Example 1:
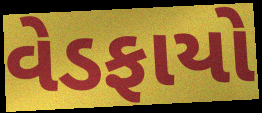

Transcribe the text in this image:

વેડફાયો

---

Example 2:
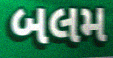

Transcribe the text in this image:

બલમ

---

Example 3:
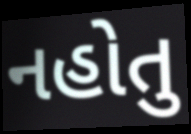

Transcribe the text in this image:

નહોતુ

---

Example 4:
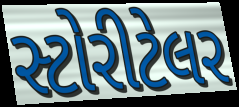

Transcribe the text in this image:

સ્ટોરીટેલર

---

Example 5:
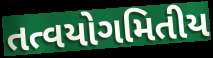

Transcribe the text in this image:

તત્વયોગમિતીય